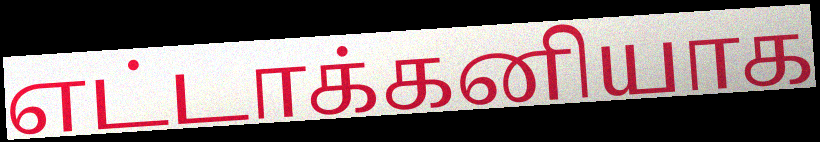
எட்டாக்கனியாக